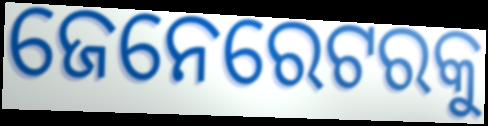
ଜେନେରେଟରକୁ